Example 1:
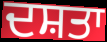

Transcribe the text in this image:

ਦਸ਼ਤਾ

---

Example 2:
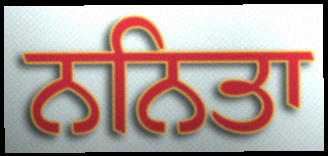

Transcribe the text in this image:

ਨਨਿਤਾ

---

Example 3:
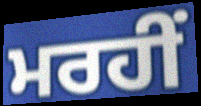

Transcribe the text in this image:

ਮਰਹੀਂ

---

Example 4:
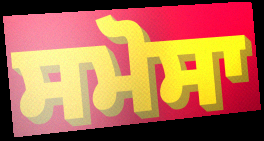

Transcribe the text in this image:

ਸਮੋਸਾ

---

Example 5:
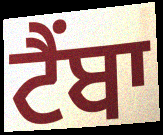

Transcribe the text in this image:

ਟੈਂਬਾ